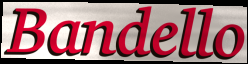
Bandello